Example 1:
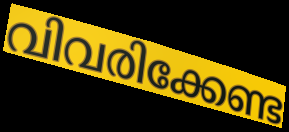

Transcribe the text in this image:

വിവരിക്കേണ്ട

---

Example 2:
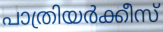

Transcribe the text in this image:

പാത്രിയർക്കീസ്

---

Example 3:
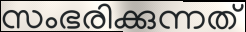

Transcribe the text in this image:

സംഭരിക്കുന്നത്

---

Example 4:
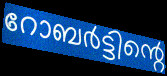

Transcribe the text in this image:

റോബർട്ടിന്റെ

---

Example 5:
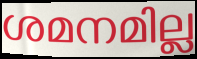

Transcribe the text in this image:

ശമനമില്ല